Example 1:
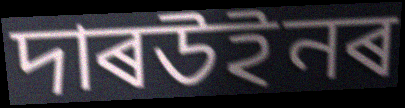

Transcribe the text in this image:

দাৰউইনৰ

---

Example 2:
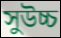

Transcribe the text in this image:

সুউচ্চ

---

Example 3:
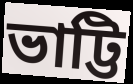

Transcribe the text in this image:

ভাট্টি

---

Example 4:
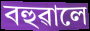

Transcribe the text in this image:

বহুৱালে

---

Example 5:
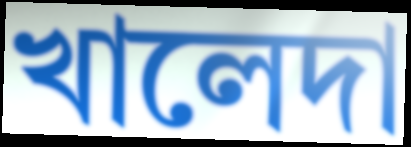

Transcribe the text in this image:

খালেদা